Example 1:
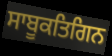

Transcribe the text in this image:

ਸਾਬੂਕਤਿਗਿਨ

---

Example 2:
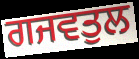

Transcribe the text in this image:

ਗਜਵਤੁਲ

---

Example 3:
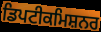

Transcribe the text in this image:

ਡਿਪਟੀਕਮਿਸ਼ਨਰ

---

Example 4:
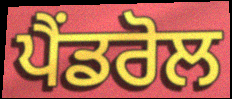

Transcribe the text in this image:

ਪੈਂਡਰੋਲ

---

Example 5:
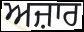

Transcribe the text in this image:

ਅਜ਼ਾਰ